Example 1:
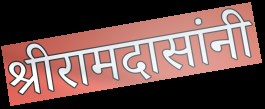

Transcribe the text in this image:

श्रीरामदासांनी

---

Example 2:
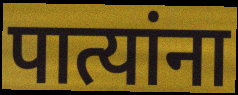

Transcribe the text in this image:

पात्यांना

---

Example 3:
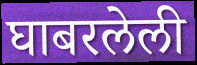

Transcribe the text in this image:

घाबरलेली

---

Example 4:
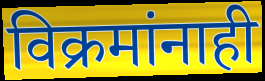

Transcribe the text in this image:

विक्रमांनाही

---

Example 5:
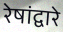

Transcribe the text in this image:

रेषांद्वारे